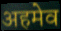
अहमेव